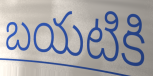
బయటికి